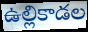
ఉల్లికాడల